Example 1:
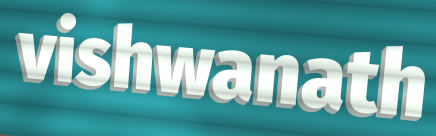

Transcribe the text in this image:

vishwanath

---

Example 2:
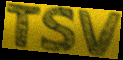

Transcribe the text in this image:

TSV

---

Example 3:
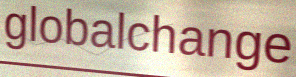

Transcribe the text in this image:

globalchange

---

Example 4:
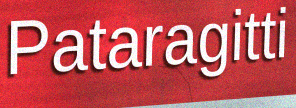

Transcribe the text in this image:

Pataragitti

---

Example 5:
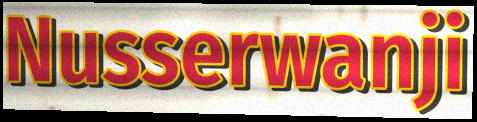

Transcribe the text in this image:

Nusserwanji